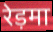
रेड़मा